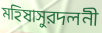
মহিষাসুরদলনী